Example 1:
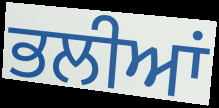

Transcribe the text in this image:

ਭਲੀਆਂ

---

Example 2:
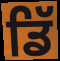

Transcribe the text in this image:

ਡਿੱ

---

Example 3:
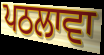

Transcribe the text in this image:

ਪਠਲਾਵਾ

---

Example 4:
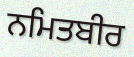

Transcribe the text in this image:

ਨਮਿਤਬੀਰ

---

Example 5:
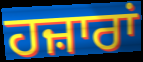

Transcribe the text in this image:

ਹਜ਼ਾਰਾਂ